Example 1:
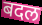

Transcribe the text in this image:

बदल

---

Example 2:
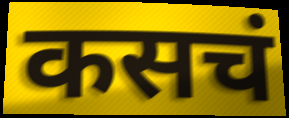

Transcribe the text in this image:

कसचं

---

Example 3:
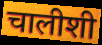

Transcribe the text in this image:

चालीशी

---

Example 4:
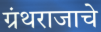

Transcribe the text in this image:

ग्रंथराजाचे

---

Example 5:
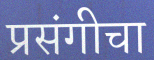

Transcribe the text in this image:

प्रसंगीचा